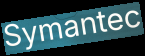
Symantec